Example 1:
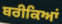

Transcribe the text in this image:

ਬਰੀਕਿਆਂ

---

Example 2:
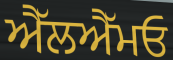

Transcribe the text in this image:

ਐੱਲਐੱਮਓ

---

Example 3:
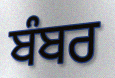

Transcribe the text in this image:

ਬੰਬਰ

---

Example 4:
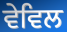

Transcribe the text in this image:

ਵੇਵਿਲ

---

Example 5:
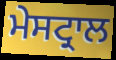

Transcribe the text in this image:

ਮੇਸਟ੍ਰਾਲ